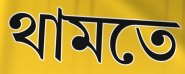
থামতে